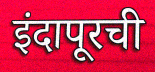
इंदापूरची